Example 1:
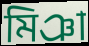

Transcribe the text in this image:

মিঞা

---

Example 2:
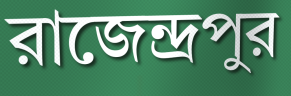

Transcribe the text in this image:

রাজেন্দ্রপুর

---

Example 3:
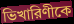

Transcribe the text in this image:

ভিখারিণীকে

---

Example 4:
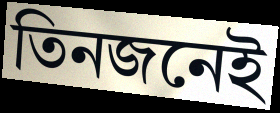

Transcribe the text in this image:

তিনজনেই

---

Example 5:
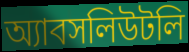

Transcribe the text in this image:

অ্যাবসলিউটলি